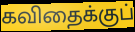
கவிதைக்குப்